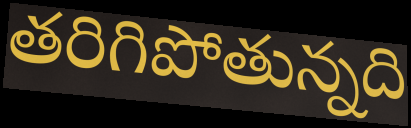
తరిగిపోతున్నది